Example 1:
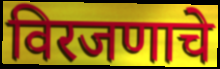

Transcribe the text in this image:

विरजणाचे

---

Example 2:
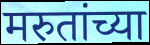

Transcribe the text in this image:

मरुतांच्या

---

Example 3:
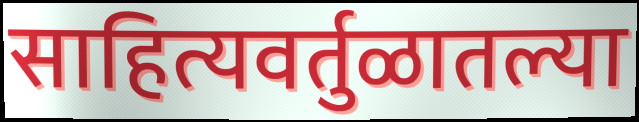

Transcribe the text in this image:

साहित्यवर्तुळातल्या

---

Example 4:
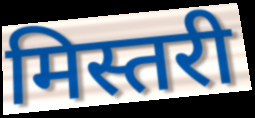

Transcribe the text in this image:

मिस्तरी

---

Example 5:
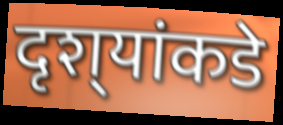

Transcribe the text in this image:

दृश्यांकडे